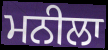
ਮਨੀਲਾ